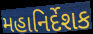
મહાનિર્દેશક